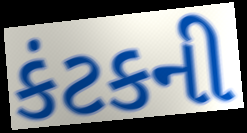
કંટકની